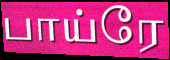
பாய்ரே